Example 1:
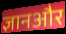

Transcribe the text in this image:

ज्ञानऔर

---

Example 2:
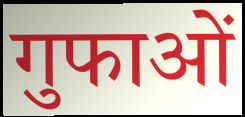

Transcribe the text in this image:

गुफाओं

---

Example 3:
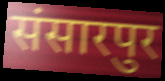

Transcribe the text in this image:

संसारपुर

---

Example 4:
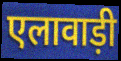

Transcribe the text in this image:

एलावाड़ी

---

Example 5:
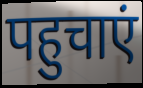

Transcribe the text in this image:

पहुचाएं